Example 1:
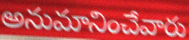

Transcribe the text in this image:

అనుమానించేవారు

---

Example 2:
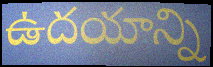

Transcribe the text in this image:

ఉదయాన్ని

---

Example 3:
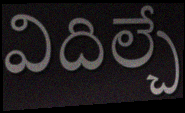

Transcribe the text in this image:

విదిల్చే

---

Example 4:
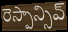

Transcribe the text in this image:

రెస్పాన్సివ్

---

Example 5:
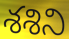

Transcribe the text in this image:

శశిని